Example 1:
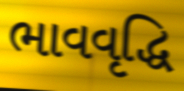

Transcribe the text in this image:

ભાવવૃદ્ધિ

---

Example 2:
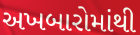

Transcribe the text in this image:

અખબારોમાંથી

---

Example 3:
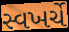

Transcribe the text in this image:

સ્વખર્ચે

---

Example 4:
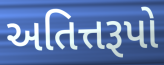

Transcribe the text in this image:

અતિત્તરૂપો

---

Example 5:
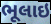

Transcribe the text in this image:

ભૂલાઇ